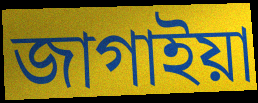
জাগাইয়া